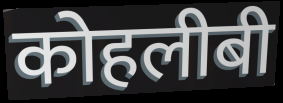
कोहलीबी